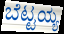
ಬೆಟ್ಟಯ್ಯ